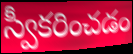
స్వీకరించడం